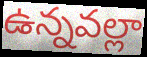
ఉన్నవల్లా